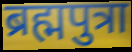
ब्रह्मपुत्रा